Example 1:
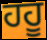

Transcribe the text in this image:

ਹਹੂ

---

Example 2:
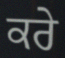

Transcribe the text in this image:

ਕਰੇ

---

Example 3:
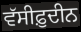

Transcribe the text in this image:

ਵੱਸੀਫ਼ੁਦੀਨ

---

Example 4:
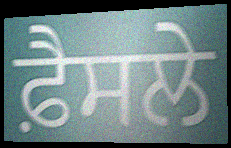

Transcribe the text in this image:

ਫ਼ੈਸਲੇ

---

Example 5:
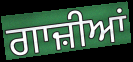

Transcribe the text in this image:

ਗਾਜ਼ੀਆਂ